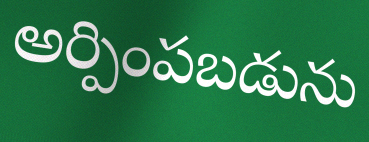
అర్పింపబడును